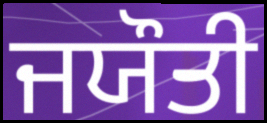
ਜਯੌਤੀ